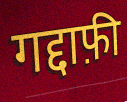
गद्दाफ़ी